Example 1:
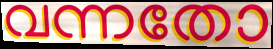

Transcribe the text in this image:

വന്നതോ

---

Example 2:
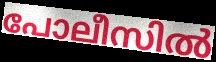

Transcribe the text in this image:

പോലീസിൽ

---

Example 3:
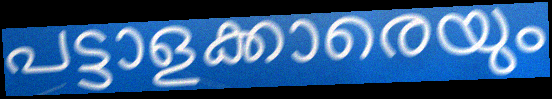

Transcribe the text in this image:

പട്ടാളക്കാരെയും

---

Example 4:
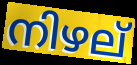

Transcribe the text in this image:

നിഴല്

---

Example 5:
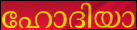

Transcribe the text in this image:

ഹോദിയാ